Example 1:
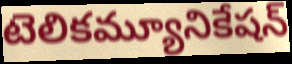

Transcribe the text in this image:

టెలికమ్యూనికేషన్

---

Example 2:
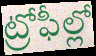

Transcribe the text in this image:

ట్రోఫీల్లో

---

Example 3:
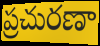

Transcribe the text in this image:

ప్రచురణా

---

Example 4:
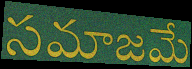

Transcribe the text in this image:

సమాజమే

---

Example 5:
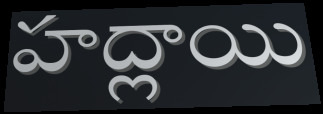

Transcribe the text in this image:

హద్లాయి